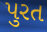
પુરત